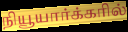
நியூயார்க்கரில்